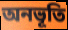
অনভূতি